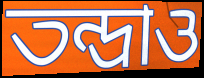
তন্দ্রাও